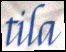
tila